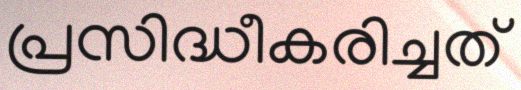
പ്രസിദ്ധീകരിച്ചത്